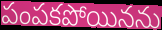
పంపకపోయినను